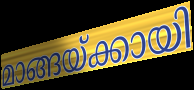
മാങ്ങയ്ക്കായി